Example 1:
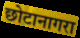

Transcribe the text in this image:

छोटानागरा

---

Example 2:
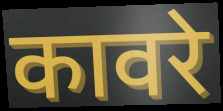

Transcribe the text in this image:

कावरे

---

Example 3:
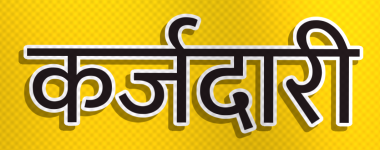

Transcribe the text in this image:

कर्जदारी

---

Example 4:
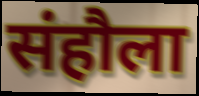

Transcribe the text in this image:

संहौला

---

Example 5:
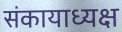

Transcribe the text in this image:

संकायाध्यक्ष